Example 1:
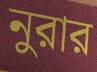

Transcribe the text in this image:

নুরার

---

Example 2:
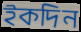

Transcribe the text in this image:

ইকদিন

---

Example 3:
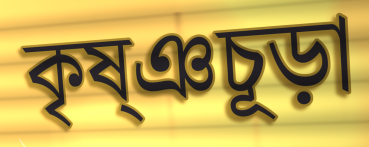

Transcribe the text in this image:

কৃষ্ঞচূড়া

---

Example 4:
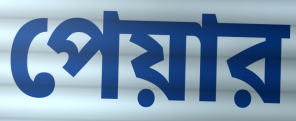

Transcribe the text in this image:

পেয়ার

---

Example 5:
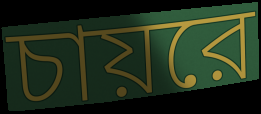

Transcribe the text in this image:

চায়রে